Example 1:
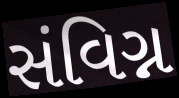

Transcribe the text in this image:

સંવિગ્ન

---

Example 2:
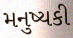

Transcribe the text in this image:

મનુષ્યકી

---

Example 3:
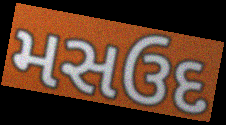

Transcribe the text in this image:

મસઉદ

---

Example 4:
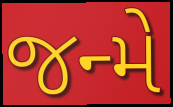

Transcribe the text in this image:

જન્મે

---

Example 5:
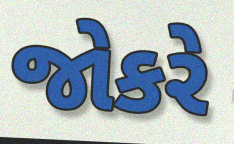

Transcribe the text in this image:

જોકરે